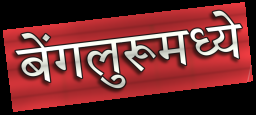
बेंगलुरूमध्ये